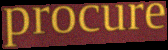
procure